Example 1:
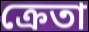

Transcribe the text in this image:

ক্রেতা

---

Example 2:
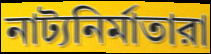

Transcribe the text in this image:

নাট্যনির্মাতারা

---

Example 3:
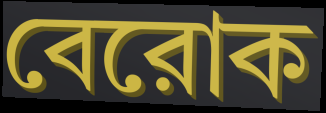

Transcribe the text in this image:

বেরোক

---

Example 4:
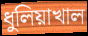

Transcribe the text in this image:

ধুলিয়াখাল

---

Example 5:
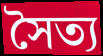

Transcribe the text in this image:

সৈত্য